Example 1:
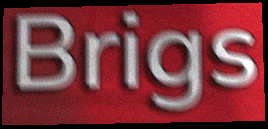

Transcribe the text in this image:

Brigs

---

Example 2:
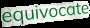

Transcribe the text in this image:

equivocate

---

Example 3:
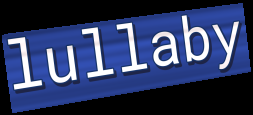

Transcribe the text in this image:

lullaby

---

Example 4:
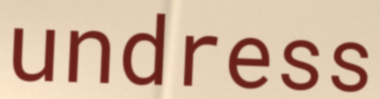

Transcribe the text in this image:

undress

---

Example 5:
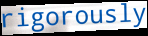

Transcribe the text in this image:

rigorously